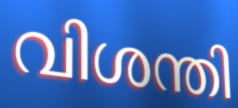
വിശന്തി